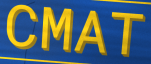
CMAT